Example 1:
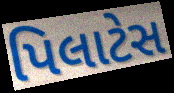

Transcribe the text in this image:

પિલાટેસ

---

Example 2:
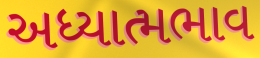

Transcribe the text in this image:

અધ્યાત્મભાવ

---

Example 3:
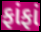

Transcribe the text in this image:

ફાંફાં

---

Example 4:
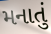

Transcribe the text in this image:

મનાતું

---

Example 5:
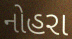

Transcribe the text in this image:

નોહરા